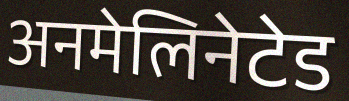
अनमेलिनेटेड